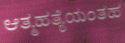
ಆತ್ಮಹತ್ಯೆಯಂತಹ